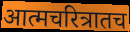
आत्मचरित्रातच